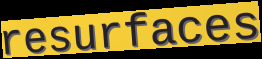
resurfaces